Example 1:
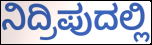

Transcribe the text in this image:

ನಿದ್ರಿಪುದಲ್ಲಿ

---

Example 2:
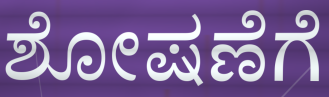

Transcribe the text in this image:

ಶೋಷಣೆಗೆ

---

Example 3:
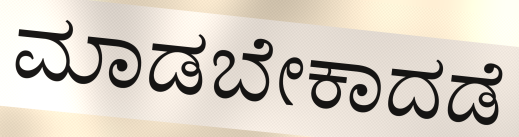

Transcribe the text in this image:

ಮಾಡಬೇಕಾದಡೆ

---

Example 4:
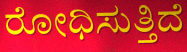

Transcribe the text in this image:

ರೋಧಿಸುತ್ತಿದೆ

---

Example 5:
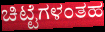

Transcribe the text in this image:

ಚಿಟ್ಟೆಗಳಂತಹ